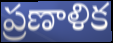
ప్రణాళిక